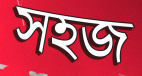
সহজ